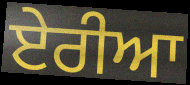
ਏਰੀਆ